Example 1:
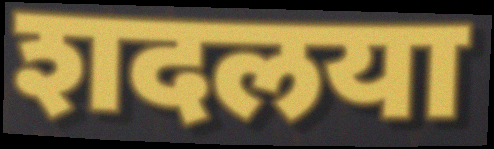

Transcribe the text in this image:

शदलया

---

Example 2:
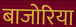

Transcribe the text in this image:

बाजोरिया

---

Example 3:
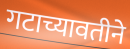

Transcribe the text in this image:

गटाच्यावतीने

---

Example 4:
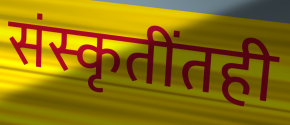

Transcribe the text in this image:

संस्कृतींतही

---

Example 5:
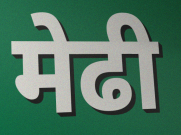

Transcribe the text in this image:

मेढी